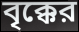
বৃক্কের